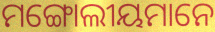
ମଙ୍ଗୋଲୀୟମାନେ